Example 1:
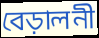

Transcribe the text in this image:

বেড়ালনী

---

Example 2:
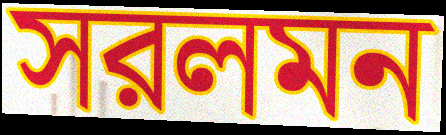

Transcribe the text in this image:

সরলমন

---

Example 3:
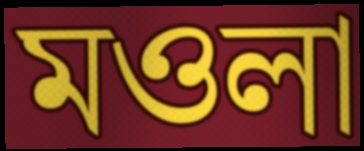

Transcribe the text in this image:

মওলা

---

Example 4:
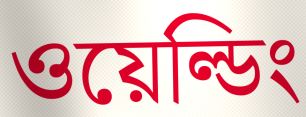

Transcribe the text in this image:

ওয়েল্ডিং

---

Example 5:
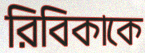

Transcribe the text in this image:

রিবিকাকে